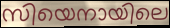
സിയെനായിലെ